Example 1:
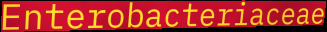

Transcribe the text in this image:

Enterobacteriaceae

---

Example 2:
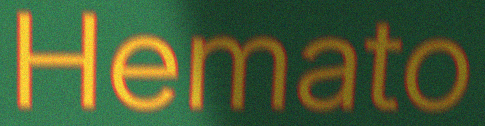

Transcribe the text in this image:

Hemato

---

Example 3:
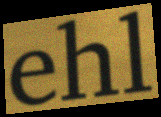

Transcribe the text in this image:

ehl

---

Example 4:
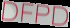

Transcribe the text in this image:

DFPD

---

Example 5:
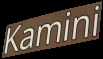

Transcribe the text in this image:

Kamini